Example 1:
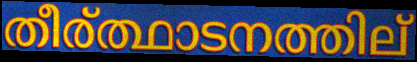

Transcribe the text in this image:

തീര്ത്ഥാടനത്തില്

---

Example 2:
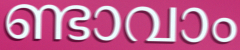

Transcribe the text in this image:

ണ്ടാവാം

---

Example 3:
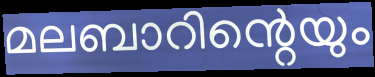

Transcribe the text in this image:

മലബാറിന്റെയും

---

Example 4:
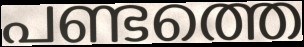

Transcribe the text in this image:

പണ്ടത്തെ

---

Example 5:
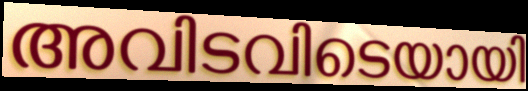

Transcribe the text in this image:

അവിടവിടെയായി